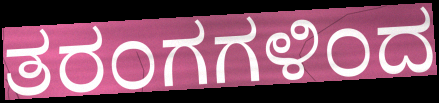
ತರಂಗಗಳಿಂದ